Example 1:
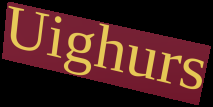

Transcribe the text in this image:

Uighurs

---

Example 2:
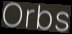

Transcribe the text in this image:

Orbs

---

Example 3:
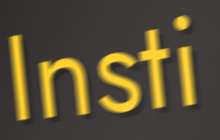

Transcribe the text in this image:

Insti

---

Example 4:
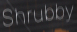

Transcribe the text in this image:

Shrubby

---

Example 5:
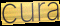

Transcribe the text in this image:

cura